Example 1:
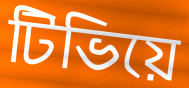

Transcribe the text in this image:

টিভিয়ে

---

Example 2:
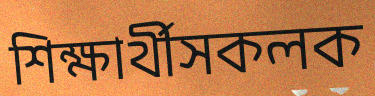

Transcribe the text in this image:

শিক্ষাৰ্থীসকলক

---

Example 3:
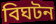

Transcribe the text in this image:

বিঘটন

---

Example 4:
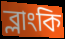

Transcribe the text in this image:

ব্লাংকি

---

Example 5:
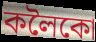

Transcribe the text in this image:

কলৈকো